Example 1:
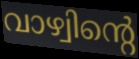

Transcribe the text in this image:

വാഴ്വിന്റെ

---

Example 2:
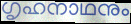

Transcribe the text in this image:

ഗൃഹനാഥനും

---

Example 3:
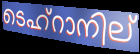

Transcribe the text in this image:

ടെഹ്റാനില്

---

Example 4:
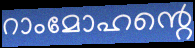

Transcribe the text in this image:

റാംമോഹന്റെ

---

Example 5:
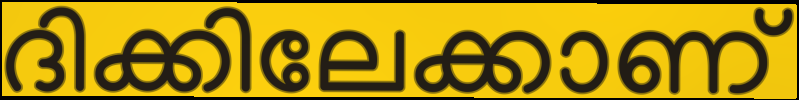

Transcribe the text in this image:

ദിക്കിലേക്കാണ്